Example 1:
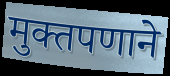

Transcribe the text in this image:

मुक्तपणाने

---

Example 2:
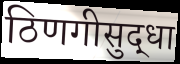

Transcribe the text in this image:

ठिणगीसुद्धा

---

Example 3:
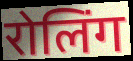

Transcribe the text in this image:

रोलिंग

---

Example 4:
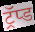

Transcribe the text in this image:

ट्रॅप्ड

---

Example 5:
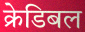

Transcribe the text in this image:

क्रेडिबल